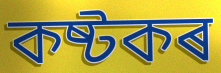
কষ্টকৰ